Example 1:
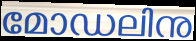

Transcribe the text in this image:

മോഡലിനു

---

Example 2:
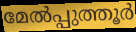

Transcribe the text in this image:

മേൽപ്പുത്തൂർ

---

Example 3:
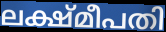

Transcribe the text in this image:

ലക്ഷ്മീപതി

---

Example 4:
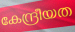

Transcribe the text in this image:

കേന്ദ്രീയത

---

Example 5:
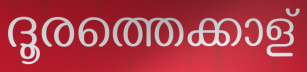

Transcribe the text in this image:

ദൂരത്തെക്കാള്